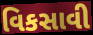
વિકસાવી